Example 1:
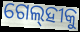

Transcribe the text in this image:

ଗେଲ୍‌ହୀକୁ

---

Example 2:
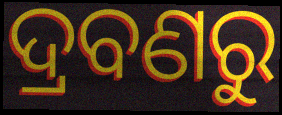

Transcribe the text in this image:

ଦ୍ରବଣରୁ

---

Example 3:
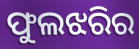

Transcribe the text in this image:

ଫୁଲଝରିର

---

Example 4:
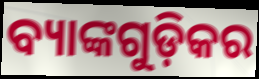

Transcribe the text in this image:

ବ୍ୟାଙ୍କଗୁଡ଼ିକର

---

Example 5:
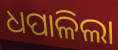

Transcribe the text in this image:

ଧପାଳିଲା